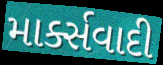
માર્ક્સવાદી